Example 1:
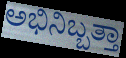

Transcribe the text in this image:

ಅಭಿನಿಬ್ಬತ್ತಾ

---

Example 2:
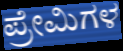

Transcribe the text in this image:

ಪ್ರೇಮಿಗಳ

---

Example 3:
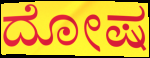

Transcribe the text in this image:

ದೋಷ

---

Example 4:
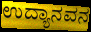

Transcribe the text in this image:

ಉದ್ಯಾನವನ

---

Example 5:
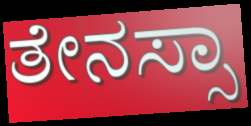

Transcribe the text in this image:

ತೇನಸ್ಸಾ